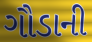
ગૌડાની